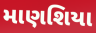
માણશિયા